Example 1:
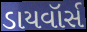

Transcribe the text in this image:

ડાયવૉર્સ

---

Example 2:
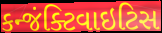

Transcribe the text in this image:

કન્જંક્ટિવાઇટિસ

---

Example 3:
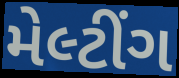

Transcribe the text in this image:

મેલ્ટીંગ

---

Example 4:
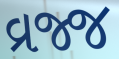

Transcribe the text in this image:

વ્રજ્જ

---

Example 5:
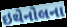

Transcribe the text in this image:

ઇથેનોલના